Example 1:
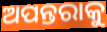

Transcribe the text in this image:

ଅପନ୍ତରାକୁ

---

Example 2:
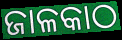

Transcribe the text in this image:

ଜାଳକାଠ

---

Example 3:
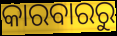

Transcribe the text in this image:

କାରବାରରୁ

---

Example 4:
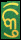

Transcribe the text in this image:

କ୍ତି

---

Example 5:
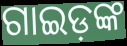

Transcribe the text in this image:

ଗାଇଡ଼ଙ୍କ